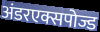
अंडरएक्सपोज्ड